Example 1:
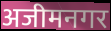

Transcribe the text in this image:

अजीमनगर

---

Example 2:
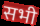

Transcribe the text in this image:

सभी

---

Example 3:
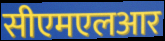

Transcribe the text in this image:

सीएमएलआर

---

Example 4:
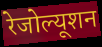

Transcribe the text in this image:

रेजोल्यूशन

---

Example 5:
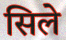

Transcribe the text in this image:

सिले